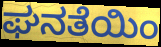
ಘನತೆಯಿಂ